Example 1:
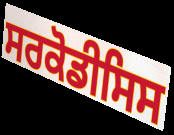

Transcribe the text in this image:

ਸਰਕੋਡੀਸਿਸ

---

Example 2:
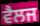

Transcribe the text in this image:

ਵੈਲਜ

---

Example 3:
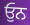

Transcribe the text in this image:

ਓੁਨ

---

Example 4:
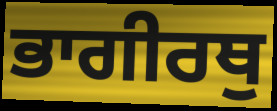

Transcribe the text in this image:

ਭਾਗੀਰਥੁ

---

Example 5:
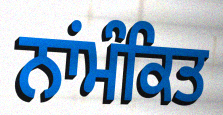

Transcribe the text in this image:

ਨਾਂਮੰਕਿਤ